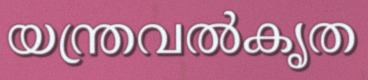
യന്ത്രവൽകൃത